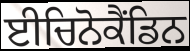
ਈਚਿਨੋਕੈਂਡਿਨ